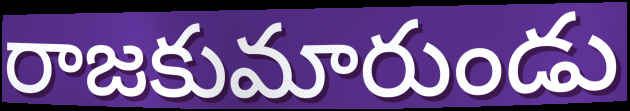
రాజకుమారుండు